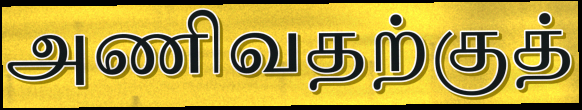
அணிவதற்குத்